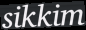
sikkim